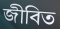
জীবিত